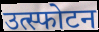
उत्स्फोटन